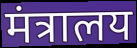
मंत्रालय